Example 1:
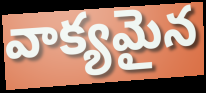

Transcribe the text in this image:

వాక్యమైన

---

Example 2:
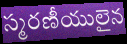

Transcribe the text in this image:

స్మరణీయులైన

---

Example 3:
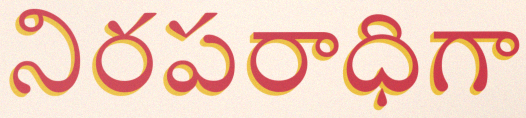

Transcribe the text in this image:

నిరపరాధిగా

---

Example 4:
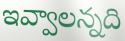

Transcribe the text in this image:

ఇవ్వాలన్నది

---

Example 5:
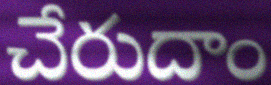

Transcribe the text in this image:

చేరుదాం